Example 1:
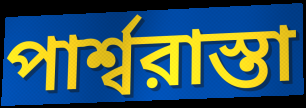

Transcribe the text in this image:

পার্শ্বরাস্তা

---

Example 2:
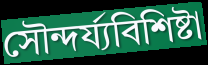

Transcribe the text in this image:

সৌন্দর্য্যবিশিষ্টা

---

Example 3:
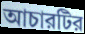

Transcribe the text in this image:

আচারটির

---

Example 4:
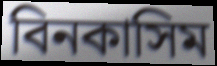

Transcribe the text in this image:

বিনকাসিম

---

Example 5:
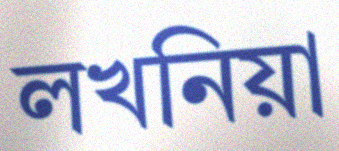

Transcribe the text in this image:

লখনিয়া